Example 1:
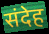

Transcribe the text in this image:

संदेह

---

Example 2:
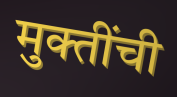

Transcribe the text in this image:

मुक्तींची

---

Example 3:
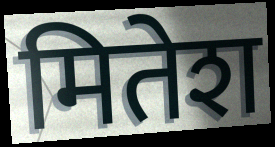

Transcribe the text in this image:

मितेश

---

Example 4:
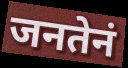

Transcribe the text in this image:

जनतेनं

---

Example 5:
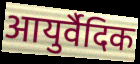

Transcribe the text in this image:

आयुर्वैदिक